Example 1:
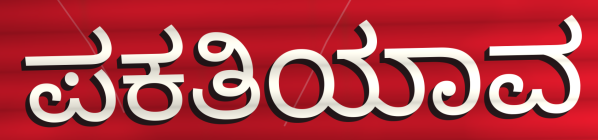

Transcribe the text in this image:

ಪಕತಿಯಾವ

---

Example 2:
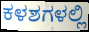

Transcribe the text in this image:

ಕಳಶಗಳಲ್ಲಿ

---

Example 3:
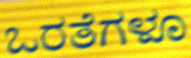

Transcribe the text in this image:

ಒರತೆಗಳೂ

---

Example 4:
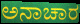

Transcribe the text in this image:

ಅನಾಚಾರ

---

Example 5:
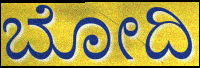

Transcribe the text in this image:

ಬೋದಿ